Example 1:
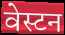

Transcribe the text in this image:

वेस्टन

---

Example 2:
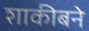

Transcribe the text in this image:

शाकीबने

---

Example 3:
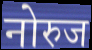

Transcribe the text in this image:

नोरुज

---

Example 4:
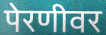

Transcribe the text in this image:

पेरणीवर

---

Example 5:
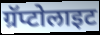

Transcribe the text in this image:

ग्रॅप्टोलाइट